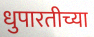
धुपारतीच्या